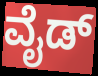
ವೈಡ್